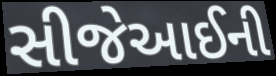
સીજેઆઈની